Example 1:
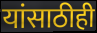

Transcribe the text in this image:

यांसाठीही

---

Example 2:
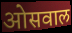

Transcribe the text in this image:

ओसवाल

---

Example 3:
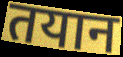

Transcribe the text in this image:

तयान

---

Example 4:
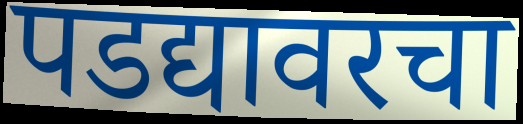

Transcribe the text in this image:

पडद्यावरचा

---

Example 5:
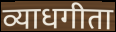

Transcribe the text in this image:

व्याधगीता